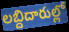
లబ్దిదారుల్లో